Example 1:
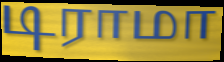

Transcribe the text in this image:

டிராமா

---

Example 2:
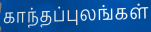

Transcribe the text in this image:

காந்தப்புலங்கள்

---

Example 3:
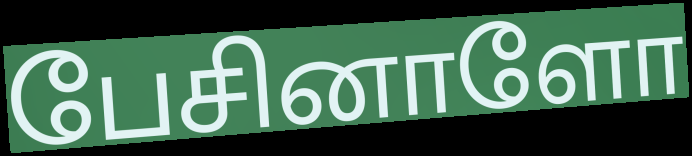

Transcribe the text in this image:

பேசினாளோ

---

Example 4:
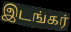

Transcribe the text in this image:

இடங்கர்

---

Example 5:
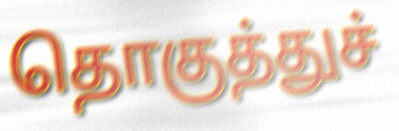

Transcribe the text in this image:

தொகுத்துச்